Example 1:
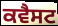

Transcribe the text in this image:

ਕਵੈਸਟ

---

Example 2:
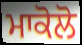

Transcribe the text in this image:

ਮਾਕੋਲੋ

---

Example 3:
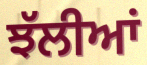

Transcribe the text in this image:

ਝੱਲੀਆਂ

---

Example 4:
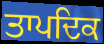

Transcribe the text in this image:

ਤਾਪਦਿਕ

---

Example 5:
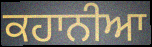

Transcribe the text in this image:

ਕਹਾਨੀਆ